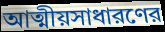
আত্মীয়সাধারণের